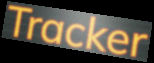
Tracker